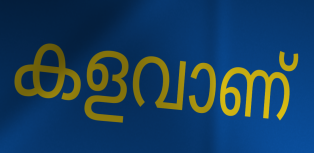
കളവാണ്